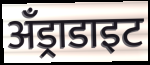
अँड्राडाइट